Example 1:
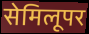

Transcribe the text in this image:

सेमिलूपर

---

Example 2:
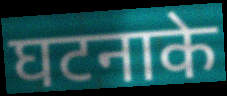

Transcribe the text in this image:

घटनाके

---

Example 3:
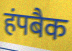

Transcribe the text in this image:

हंपबैक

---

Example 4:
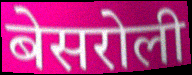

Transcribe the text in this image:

बेसरोली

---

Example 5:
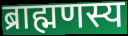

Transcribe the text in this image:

ब्राह्मणस्य